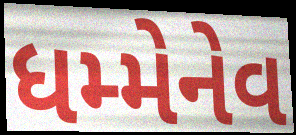
ધમ્મેનેવ